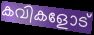
കവികളോട്